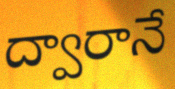
ద్వారానే